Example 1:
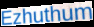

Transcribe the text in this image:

Ezhuthum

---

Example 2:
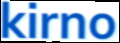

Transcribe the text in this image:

kirno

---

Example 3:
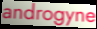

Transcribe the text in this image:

androgyne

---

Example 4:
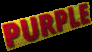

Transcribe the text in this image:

PURPLE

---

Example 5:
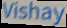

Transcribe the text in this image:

Vishay